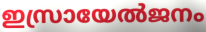
ഇസ്രായേൽജനം